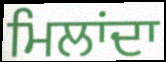
ਮਿਲਾਂਦਾ